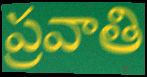
ప్రవాతి